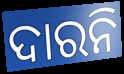
ଦାରନି